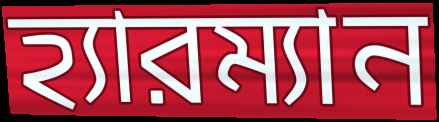
হ্যারম্যান